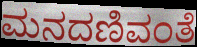
ಮನದಣಿವಂತೆ